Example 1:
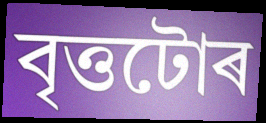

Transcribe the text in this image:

বৃত্তটোৰ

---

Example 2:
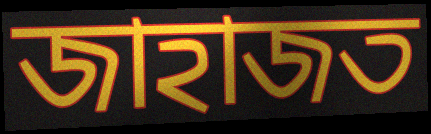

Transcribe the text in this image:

জাহাজত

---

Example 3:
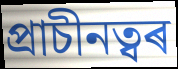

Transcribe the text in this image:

প্ৰাচীনত্বৰ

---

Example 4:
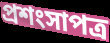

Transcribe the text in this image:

প্ৰশংসাপত্ৰ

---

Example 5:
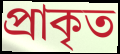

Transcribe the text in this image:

প্ৰাকৃত